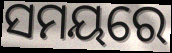
ସମୟରେ